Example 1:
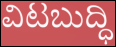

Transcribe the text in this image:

ವಿಟಬುದ್ಧಿ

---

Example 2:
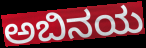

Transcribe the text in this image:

ಅಬಿನಯ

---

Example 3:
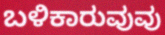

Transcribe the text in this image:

ಬಳಿಕಾರುವುವು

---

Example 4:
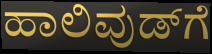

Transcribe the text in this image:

ಹಾಲಿವುಡ್‌ಗೆ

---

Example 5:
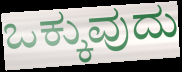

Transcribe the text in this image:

ಒಕ್ಕುವುದು